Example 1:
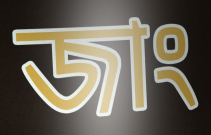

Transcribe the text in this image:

জাং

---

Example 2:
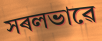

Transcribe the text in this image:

সৰলভাৱে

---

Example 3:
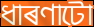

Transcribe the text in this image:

ধাৰণাটো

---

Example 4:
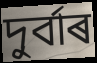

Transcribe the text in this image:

দুৰ্বাৰ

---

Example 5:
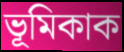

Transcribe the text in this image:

ভূমিকাক